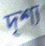
দৃশ্য